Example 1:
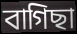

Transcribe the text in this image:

বাগিছা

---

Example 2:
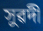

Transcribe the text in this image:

সুৱদী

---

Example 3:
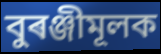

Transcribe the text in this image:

বুৰঞ্জীমূলক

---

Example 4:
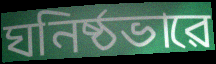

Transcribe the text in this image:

ঘনিষ্ঠভাৱে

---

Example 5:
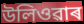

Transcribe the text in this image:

উলিওৱাৰ